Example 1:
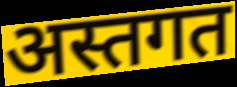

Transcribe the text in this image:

अस्तगत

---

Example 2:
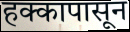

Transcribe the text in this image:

हक्कापासून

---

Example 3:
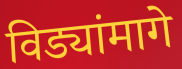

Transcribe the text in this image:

विड्यांमागे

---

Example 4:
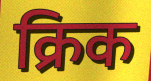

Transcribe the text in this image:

क्रिक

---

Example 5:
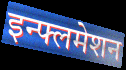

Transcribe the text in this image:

इन्फ्लमेशन